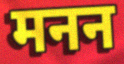
मनन